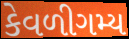
કેવળીગમ્ય